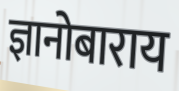
ज्ञानोबाराय